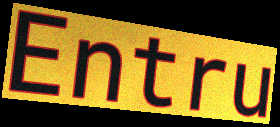
Entru